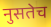
नुसतेच